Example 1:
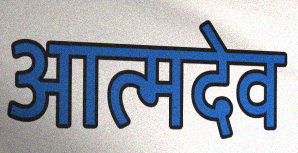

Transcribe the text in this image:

आत्मदेव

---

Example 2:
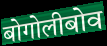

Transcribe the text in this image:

बोगोलीबोव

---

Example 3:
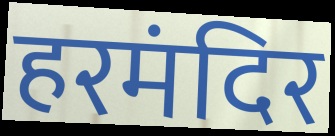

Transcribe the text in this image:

हरमंदिर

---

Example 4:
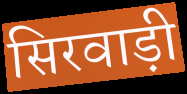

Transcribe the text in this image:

सिरवाड़ी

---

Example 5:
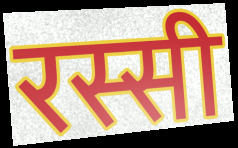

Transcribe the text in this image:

रस्सी